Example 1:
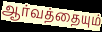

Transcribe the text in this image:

ஆர்வத்தையும்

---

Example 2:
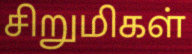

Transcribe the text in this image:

சிறுமிகள்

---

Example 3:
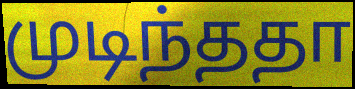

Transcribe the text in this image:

முடிந்ததா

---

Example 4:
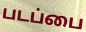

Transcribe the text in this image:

படப்பை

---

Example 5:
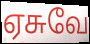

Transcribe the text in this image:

ஏசுவே